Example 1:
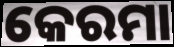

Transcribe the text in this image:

କେରମା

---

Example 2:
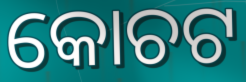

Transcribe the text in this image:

କୋଚଟ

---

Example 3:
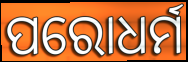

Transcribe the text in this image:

ପରୋଧର୍ମ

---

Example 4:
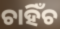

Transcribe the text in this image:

ଚାହିଁଚ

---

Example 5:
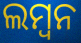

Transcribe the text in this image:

ଲମ୍ବନ